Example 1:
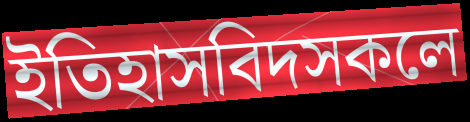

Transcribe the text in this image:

ইতিহাসবিদসকলে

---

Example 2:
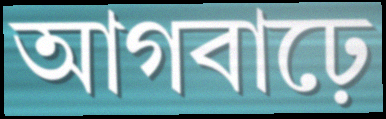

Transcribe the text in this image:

আগবাঢ়ে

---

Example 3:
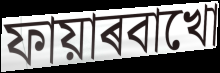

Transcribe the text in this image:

ফায়াৰবাখো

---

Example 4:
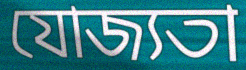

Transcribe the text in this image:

যোজ্যতা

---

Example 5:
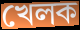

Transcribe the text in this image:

খেলক